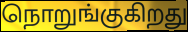
நொறுங்குகிறது